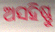
ଅସହିଷ୍ଣୁ